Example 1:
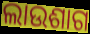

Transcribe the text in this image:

ଲାଉଶାଗ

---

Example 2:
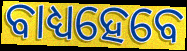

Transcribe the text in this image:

ବାଧ୍ୟହେବେ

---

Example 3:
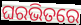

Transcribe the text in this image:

ଘରଭିତରେ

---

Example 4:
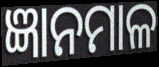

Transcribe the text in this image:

ଜ୍ଞାନମାଳ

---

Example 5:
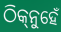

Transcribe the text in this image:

ଠିକ୍‌ନୁହେଁ